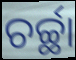
ଚର୍ଚ୍ଛା